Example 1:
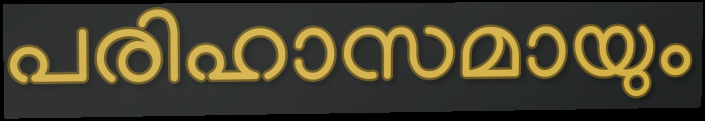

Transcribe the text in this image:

പരിഹാസമായും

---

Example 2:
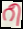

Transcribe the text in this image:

റീ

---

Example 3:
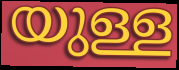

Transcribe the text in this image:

യുള്ള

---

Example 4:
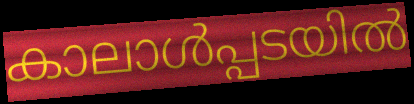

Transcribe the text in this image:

കാലാൾപ്പടയിൽ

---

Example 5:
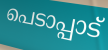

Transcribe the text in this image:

പെടാപ്പാട്